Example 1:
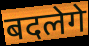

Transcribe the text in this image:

बदलेगे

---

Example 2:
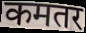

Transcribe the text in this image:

कमतर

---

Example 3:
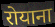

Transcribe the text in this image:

रोयाना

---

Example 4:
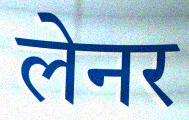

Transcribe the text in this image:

लेनर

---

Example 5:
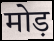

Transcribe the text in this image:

मोड़